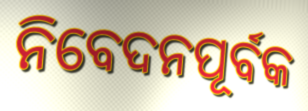
ନିବେଦନପୂର୍ବକ